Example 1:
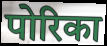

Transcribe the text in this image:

पोरिका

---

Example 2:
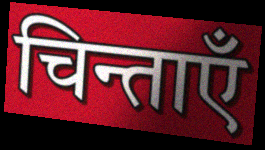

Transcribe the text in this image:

चिन्ताएँ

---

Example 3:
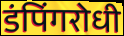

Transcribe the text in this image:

डंपिंगरोधी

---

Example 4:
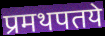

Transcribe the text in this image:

प्रमथपतये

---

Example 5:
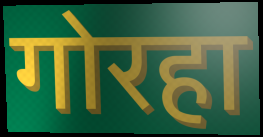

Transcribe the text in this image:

गोरहा